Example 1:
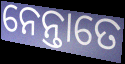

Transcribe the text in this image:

ନେନ୍ତାତେ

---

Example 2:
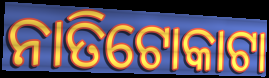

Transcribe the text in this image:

ନାତିଟୋକାଟା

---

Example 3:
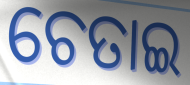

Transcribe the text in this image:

ଚେତାଇ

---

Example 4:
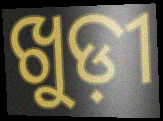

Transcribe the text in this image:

ଖୁଡ଼ୀ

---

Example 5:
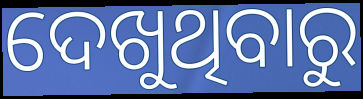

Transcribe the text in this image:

ଦେଖୁଥିବାରୁ